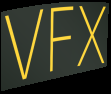
VFX